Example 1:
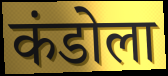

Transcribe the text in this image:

कंडोला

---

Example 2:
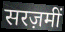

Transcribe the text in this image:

सरज़मीं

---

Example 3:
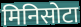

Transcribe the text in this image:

मिनिसोटा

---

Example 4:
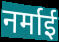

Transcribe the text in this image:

नर्माई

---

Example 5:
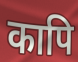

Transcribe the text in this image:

कापि